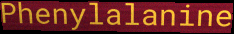
Phenylalanine